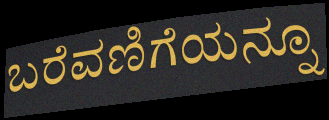
ಬರೆವಣಿಗೆಯನ್ನೂ